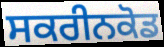
ਸਕਰੀਨਕੋਡ